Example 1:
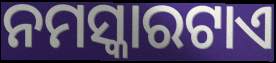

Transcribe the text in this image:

ନମସ୍କାରଟାଏ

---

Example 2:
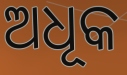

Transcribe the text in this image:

ଅଧୂକ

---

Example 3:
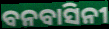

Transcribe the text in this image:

ବନବାସିନୀ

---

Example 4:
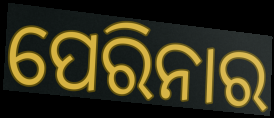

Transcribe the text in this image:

ପେରିନାର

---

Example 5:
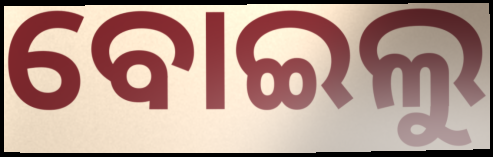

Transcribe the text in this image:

ବୋଇଲୁ